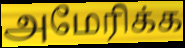
அமேரிக்க